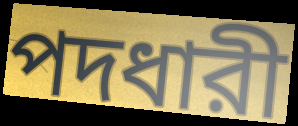
পদধারী